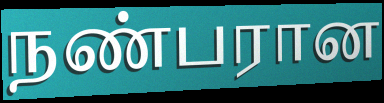
நண்பரான